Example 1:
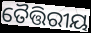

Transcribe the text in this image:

ତୈତ୍ତିରୀୟ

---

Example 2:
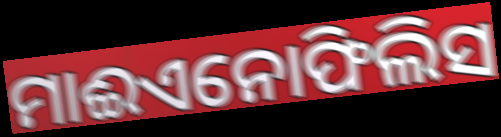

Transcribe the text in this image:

ମାଈଏନୋଫିଲିସ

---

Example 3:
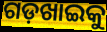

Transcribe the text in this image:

ଗଡ଼ଖାଇକୁ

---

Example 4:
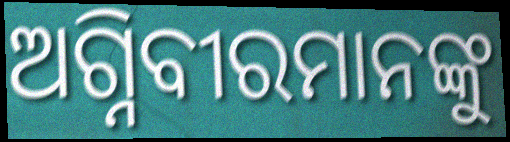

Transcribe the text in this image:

ଅଗ୍ନିବୀରମାନଙ୍କୁ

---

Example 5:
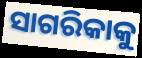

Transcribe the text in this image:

ସାଗରିକାକୁ